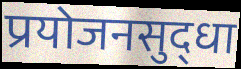
प्रयोजनसुद्धा